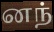
னந்